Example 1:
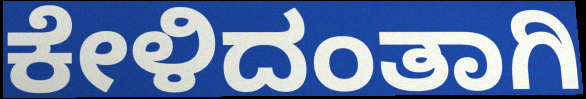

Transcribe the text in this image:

ಕೇಳಿದಂತಾಗಿ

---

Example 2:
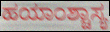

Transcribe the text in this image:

ಹಯಾಂಶ್ಚಾಸ್ಯ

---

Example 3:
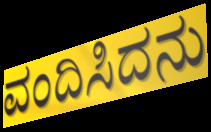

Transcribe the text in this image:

ವಂದಿಸಿದನು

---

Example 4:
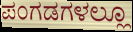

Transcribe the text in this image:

ಪಂಗಡಗಳಲ್ಲೂ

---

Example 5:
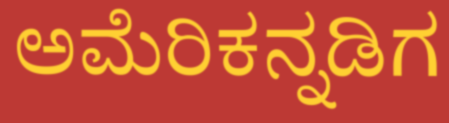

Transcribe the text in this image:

ಅಮೆರಿಕನ್ನಡಿಗ